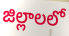
జిల్లాలలో